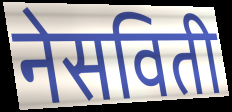
नेसविती